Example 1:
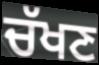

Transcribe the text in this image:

ਚੱਖਣ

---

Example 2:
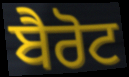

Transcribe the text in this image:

ਬੈਰੋਟ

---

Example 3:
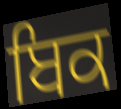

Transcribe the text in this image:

ਬਿਕ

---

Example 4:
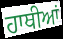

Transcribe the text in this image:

ਹਾਥੀਆਂ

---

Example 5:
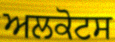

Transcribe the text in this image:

ਅਲਕੋਟਸ